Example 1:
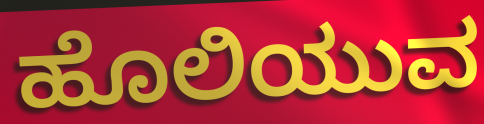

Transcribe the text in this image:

ಹೊಲಿಯುವ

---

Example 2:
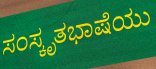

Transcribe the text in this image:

ಸಂಸ್ಕೃತಭಾಷೆಯು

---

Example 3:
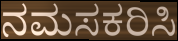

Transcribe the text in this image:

ನಮಸಕರಿಸಿ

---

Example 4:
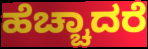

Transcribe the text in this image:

ಹೆಚ್ಚಾದರೆ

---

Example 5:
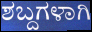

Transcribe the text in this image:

ಶಬ್ದಗಳಾಗಿ